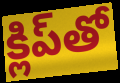
క్లిప్‌తో